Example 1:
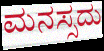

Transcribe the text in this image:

ಮನಸ್ಸದು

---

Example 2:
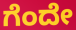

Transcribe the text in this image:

ಗೆಂದೇ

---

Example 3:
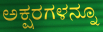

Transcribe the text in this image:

ಅಕ್ಷರಗಳನ್ನೂ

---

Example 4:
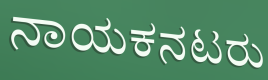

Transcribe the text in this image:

ನಾಯಕನಟರು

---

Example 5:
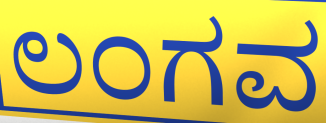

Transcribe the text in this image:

ಲಂಗವ